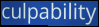
culpability